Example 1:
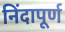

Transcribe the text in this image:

निंदापूर्ण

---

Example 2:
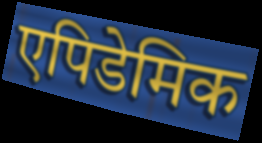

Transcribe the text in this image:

एपिडेमिक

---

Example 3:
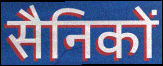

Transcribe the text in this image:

सैनिकों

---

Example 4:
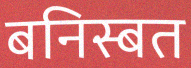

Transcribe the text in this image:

बनिस्‍बत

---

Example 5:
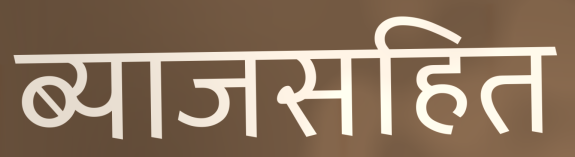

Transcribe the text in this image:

ब्याजसहित